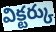
విక్టర్కు